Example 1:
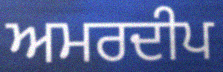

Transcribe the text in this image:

ਅਮਰਦੀਪ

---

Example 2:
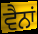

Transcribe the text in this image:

ਵੈਨਾਂ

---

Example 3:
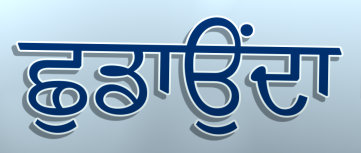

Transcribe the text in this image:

ਛੁਡਾਉਂਦਾ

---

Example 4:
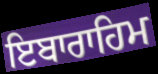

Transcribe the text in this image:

ਇਬਾਰਾਹਿਮ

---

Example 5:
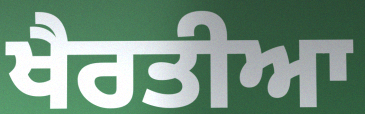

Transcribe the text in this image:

ਖੈਰਤੀਆ